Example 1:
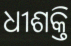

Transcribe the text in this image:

ଧୀଶକ୍ତି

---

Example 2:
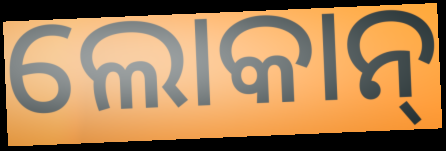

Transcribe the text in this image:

ଲୋକାନ୍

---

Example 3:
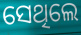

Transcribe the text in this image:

ସେଥିଲେ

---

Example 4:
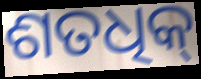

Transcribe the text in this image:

ଶତଧିକ୍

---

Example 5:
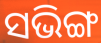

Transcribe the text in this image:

ସଭିଙ୍ଗ